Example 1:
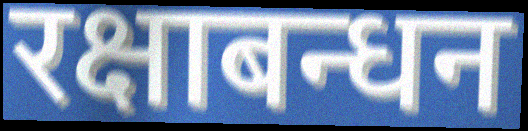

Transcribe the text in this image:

रक्षाबन्धन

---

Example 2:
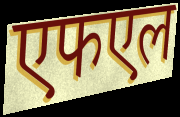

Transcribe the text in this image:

एफएल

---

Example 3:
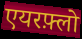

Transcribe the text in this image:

एयरफ़्लो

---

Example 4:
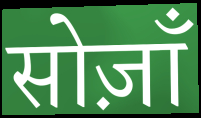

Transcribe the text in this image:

सोज़ाँ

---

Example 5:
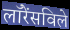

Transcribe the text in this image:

लॉरेंसविले